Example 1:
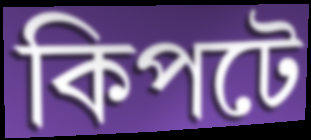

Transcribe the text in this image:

কিপটে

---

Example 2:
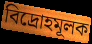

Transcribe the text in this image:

বিদ্রোহমূলক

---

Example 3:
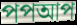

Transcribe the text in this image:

পপআপ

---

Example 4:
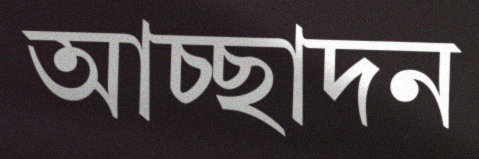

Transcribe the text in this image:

আচ্ছাদন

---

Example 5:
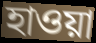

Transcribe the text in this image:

হাওয়া